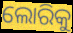
ଲୋରିକୁ